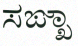
ಸಙ್ಖಾ